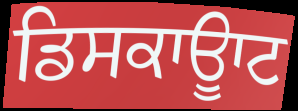
ਡਿਸਕਾਊਾਟ